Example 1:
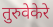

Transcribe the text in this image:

तुरुवेकेरे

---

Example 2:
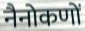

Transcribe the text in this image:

नैनोकणों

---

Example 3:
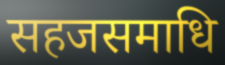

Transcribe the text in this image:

सहजसमाधि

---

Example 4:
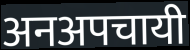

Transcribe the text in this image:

अनअपचायी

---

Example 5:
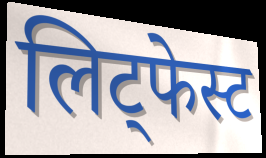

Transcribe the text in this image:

लिट्फेस्ट